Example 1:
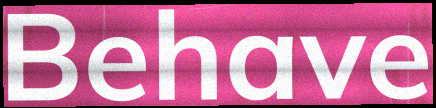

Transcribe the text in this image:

Behave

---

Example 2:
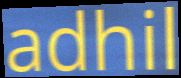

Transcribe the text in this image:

adhil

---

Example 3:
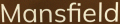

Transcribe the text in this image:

Mansfield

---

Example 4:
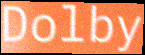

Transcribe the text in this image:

Dolby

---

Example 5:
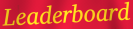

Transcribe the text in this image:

Leaderboard